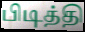
பிடித்தி